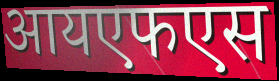
आयएफएस